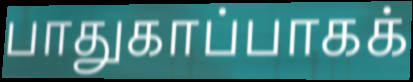
பாதுகாப்பாகக்